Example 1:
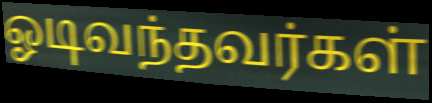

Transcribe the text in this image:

ஓடிவந்தவர்கள்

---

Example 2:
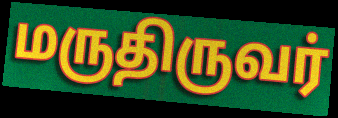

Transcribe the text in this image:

மருதிருவர்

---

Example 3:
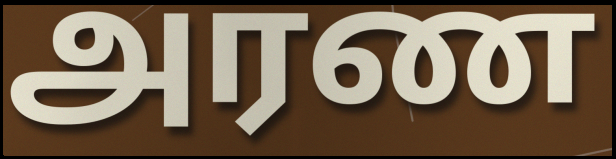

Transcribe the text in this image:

அரண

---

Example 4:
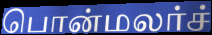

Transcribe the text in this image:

பொன்மலர்ச்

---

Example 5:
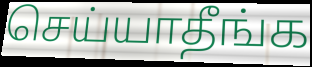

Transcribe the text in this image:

செய்யாதீங்க